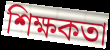
শিক্ষকতা